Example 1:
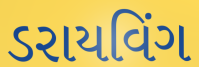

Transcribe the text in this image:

ડરાયવિંગ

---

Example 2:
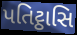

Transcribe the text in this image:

પતિટ્ઠાસિ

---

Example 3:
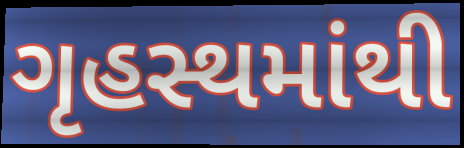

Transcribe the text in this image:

ગૃહસ્થમાંથી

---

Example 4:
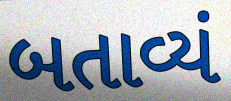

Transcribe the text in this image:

બતાવ્યં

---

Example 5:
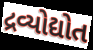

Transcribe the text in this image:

દ્રવ્યોદ્યોત